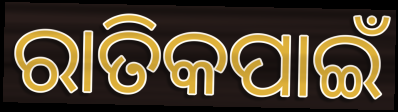
ରାତିକପାଇଁ